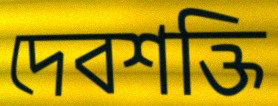
দেবশক্তি